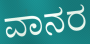
ವಾನರ